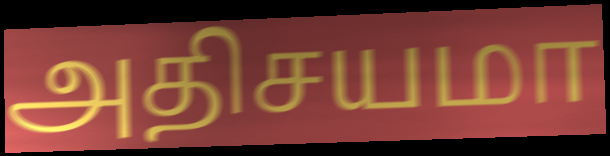
அதிசயமா